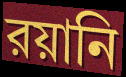
রয়ানি